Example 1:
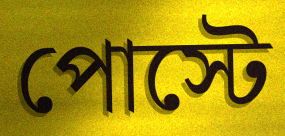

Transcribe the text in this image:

পোস্টে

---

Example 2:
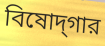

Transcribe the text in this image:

বিষোদ্‌গার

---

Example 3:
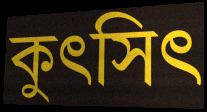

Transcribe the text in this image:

কুৎসিৎ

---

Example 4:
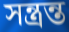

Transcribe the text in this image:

সন্ত্রন্ত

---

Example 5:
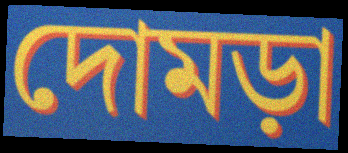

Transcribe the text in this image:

দোমড়া